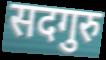
सदगुरु